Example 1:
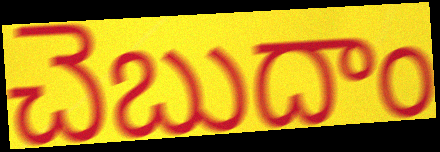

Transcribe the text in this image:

చెబుదాం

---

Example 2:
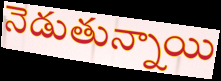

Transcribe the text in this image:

నెడుతున్నాయి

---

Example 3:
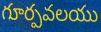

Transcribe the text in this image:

గూర్పవలయు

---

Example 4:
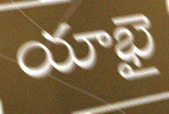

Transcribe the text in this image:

యాభై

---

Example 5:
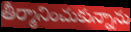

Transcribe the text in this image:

తీర్మానించుకున్నాను